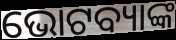
ଭୋଟବ୍ୟାଙ୍କ